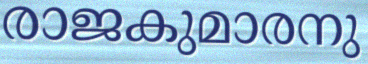
രാജകുമാരനു